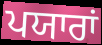
ਪਯਾਰਾਂ